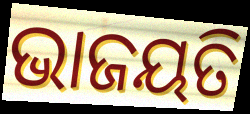
ଭାଜୟତି